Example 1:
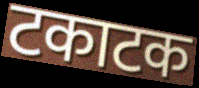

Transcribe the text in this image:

टकाटक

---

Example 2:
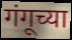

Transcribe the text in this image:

गंगूच्या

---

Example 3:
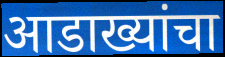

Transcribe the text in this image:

आडाख्यांचा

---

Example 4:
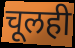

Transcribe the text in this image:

चूलही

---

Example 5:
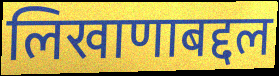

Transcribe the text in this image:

लिखाणाबद्दल